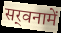
सर्वनामें